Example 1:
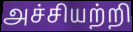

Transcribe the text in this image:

அச்சியற்றி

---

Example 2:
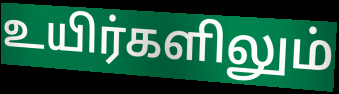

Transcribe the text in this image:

உயிர்களிலும்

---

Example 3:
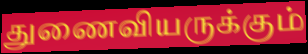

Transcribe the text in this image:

துணைவியருக்கும்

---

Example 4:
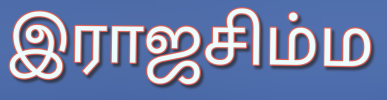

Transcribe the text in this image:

இராஜசிம்ம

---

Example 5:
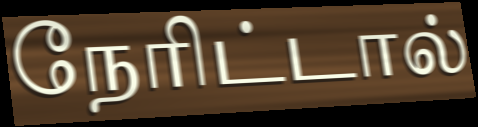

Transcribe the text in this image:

நேரிட்டால்